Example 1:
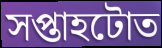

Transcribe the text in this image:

সপ্তাহটোত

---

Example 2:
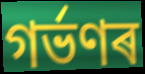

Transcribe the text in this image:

গৰ্ভণৰ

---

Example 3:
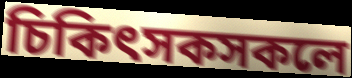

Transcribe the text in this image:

চিকিৎসকসকলে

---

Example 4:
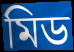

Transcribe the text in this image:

মিড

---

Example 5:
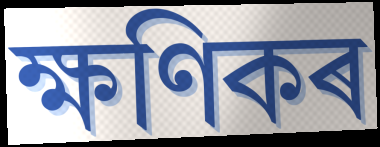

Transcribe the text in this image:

ক্ষণিকৰ